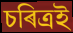
চৰিত্ৰই